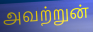
அவற்றுன்